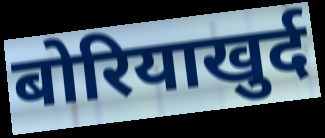
बोरियाखुर्द